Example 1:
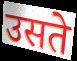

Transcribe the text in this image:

उसते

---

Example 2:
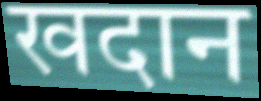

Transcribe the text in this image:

खदान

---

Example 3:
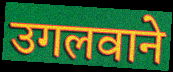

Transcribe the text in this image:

उगलवाने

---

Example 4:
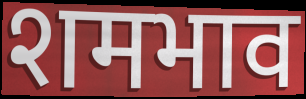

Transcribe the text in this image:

शमभाव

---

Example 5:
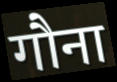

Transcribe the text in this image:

गौना